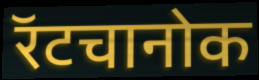
रॅटचानोक